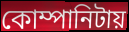
কোম্পানিটায়